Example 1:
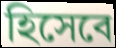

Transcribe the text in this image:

হিসেবে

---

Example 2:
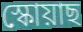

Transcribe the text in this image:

স্কোয়াছ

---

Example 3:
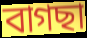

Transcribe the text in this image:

বাগছা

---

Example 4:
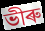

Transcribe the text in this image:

ভীৰু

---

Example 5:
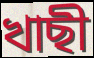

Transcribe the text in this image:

খাছী